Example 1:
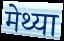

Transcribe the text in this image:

मेथ्या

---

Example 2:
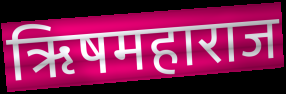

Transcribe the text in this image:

ॠिषमहाराज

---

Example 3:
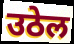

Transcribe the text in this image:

उठेल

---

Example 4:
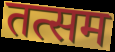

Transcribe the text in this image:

तत्सम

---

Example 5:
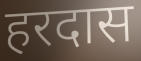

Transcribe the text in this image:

हरदास